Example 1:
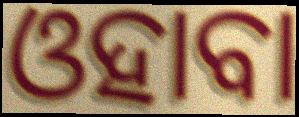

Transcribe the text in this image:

ଓହାବା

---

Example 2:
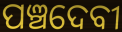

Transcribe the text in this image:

ପଞ୍ଚଦେବୀ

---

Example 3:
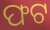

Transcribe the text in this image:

ଫଟ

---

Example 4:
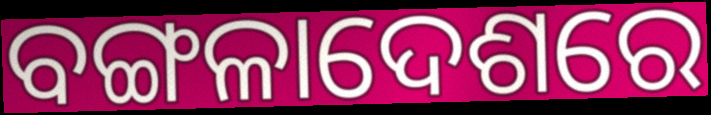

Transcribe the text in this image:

ବଙ୍ଗଳାଦେଶରେ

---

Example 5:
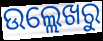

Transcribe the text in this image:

ଉଲ୍ଲେଖରୁ